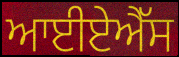
ਆਈਏਐੱਸ